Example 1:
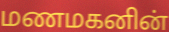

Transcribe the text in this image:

மணமகனின்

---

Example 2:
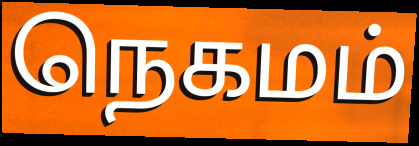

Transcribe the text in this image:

நெகமம்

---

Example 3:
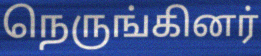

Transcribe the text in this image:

நெருங்கினர்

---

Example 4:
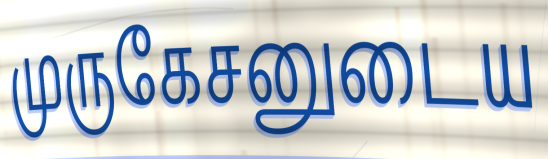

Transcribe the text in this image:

முருகேசனுடைய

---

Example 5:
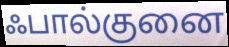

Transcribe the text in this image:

ஃபால்குனை